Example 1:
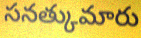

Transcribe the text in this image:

సనత్కుమారు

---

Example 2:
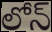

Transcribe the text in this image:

లోన్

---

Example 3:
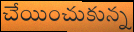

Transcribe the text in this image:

చేయించుకున్న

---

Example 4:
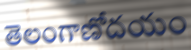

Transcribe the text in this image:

తెలంగాణోదయం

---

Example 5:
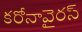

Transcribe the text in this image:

కరోనావైరస్